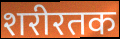
शरीरतक